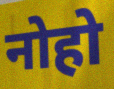
नोहो